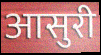
आसुरी